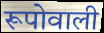
रूपोवाली